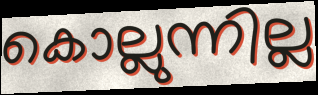
കൊല്ലുന്നില്ല